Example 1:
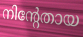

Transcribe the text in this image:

നിന്റേതായ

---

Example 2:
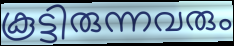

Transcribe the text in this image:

കൂട്ടിരുന്നവരും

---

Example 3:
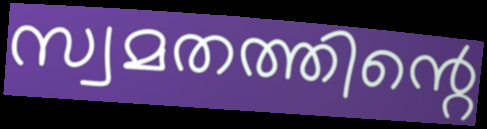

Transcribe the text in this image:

സ്വമതത്തിന്റെ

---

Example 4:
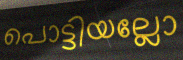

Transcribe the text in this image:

പൊട്ടിയല്ലോ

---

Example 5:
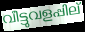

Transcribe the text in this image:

വീട്ടുവളപ്പില്